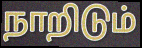
நாறிடும்